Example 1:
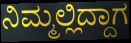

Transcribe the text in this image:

ನಿಮ್ಮಲ್ಲಿದ್ದಾಗ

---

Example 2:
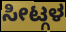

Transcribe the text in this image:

ಸೀಟ್ಗಳ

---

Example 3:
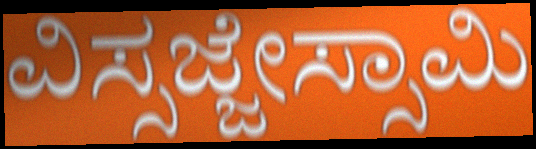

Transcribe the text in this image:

ವಿಸ್ಸಜ್ಜೇಸ್ಸಾಮಿ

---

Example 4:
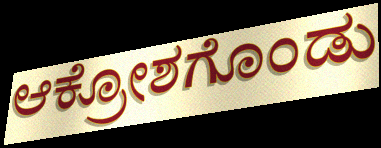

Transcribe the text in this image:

ಆಕ್ರೋಶಗೊಂಡು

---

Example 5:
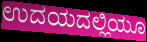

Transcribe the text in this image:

ಉದಯದಲ್ಲಿಯೂ